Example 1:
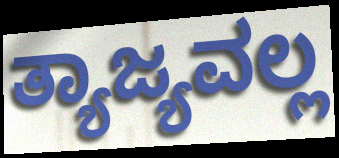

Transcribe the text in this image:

ತ್ಯಾಜ್ಯವಲ್ಲ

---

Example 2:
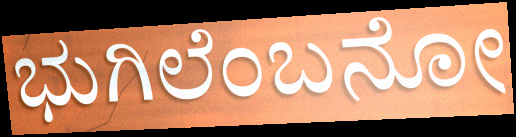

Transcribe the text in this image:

ಭುಗಿಲೆಂಬನೋ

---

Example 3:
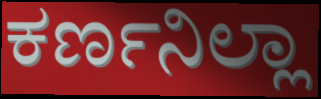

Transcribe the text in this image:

ಕರ್ಣನಿಲ್ಲಾ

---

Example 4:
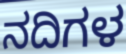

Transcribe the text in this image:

ನದಿಗಳ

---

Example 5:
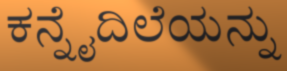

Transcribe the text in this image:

ಕನ್ನೈದಿಲೆಯನ್ನು